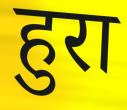
हुरा